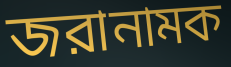
জরানামক